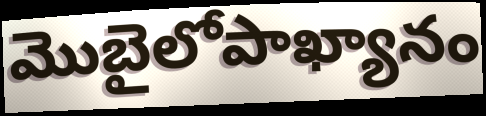
మొబైలోపాఖ్యానం